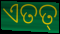
ଏତତ୍